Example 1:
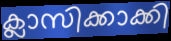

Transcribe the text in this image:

ക്ലാസിക്കാക്കി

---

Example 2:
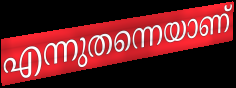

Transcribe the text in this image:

എന്നുതന്നെയാണ്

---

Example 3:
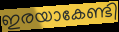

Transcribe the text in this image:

ഇരയാകേണ്ടി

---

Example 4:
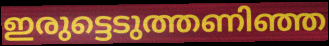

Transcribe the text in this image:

ഇരുട്ടെടുത്തണിഞ്ഞ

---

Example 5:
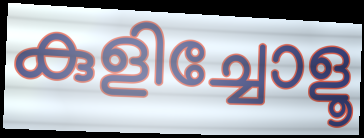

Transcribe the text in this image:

കുളിച്ചോളൂ